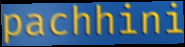
pachhini